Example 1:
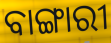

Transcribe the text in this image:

ବାଙ୍ଗାରୀ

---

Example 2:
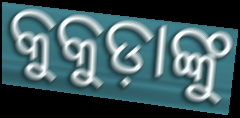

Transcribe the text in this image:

କୁକୁଡ଼ାଙ୍କୁ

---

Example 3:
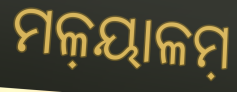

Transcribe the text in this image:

ମଳ଼ୟାଳମ଼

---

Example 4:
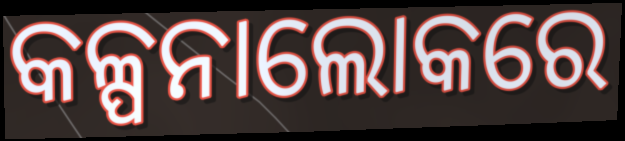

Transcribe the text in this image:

କଳ୍ପନାଲୋକରେ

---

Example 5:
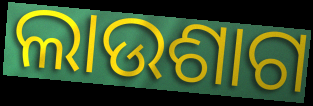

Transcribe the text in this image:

ଲାଉଶାଗ